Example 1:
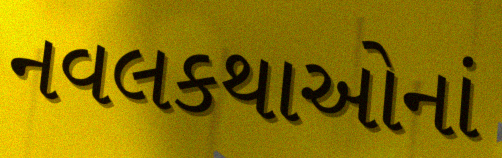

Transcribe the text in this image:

નવલકથાઓનાં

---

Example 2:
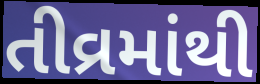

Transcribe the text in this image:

તીવ્રમાંથી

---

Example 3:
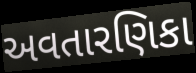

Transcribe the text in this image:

અવતારણિકા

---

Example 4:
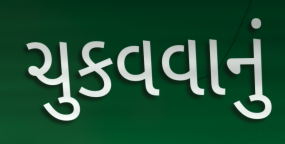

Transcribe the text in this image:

ચુકવવાનું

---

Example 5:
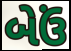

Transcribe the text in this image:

બેઉં